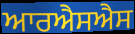
ਆਰਐਸਐਸ